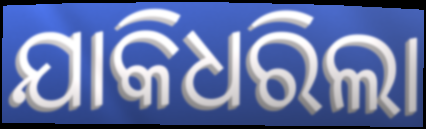
ଯାକିଧରିଲା